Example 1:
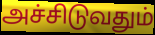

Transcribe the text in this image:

அச்சிடுவதும்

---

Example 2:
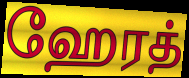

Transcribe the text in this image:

ஹேரத்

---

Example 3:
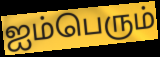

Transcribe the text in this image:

ஐம்பெரும்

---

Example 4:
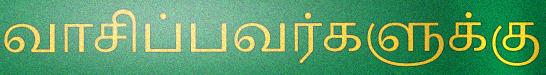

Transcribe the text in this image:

வாசிப்பவர்களுக்கு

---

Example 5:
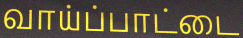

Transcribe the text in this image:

வாய்ப்பாட்டை